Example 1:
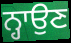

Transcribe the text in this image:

ਨ੍ਹਾਉਣ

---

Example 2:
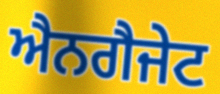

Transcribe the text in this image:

ਐਨਗੈਜੇਟ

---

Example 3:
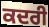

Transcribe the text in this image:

ਕਦਰੀ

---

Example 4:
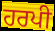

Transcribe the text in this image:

ਹਰਪੀ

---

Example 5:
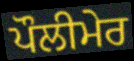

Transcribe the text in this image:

ਪੌਲੀਮੇਰ